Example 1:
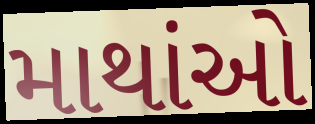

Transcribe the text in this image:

માથાંઓ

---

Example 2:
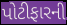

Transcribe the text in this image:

પોટીફારની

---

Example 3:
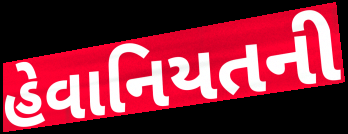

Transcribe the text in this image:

હેવાનિયતની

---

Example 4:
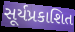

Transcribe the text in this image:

સૂર્યપ્રકાશિત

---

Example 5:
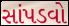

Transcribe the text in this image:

સાંપડવો